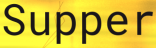
Supper